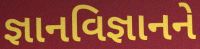
જ્ઞાનવિજ્ઞાનને